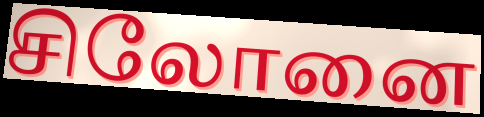
சிலோனை